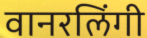
वानरलिंगी